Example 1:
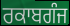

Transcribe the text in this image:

ਰਕਾਬਗੰਜ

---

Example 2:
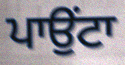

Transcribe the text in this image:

ਪਾਉਂਟਾ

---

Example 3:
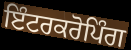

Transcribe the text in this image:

ਇੰਟਰਕਰੋਪਿੰਗ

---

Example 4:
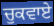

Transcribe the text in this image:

ਚੁਕਵਾਏ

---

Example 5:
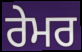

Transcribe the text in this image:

ਰੇਮਰ